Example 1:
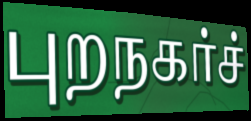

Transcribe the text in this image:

புறநகர்ச்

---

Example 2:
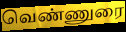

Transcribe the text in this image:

வெண்ணுரை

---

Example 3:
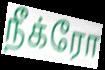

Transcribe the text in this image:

நீக்ரோ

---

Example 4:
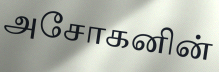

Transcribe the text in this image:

அசோகனின்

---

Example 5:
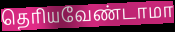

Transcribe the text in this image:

தெரியவேண்டாமா